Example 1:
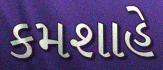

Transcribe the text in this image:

કમશાહે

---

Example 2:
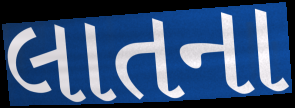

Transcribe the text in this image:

લાતના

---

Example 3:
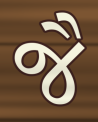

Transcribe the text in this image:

જૈ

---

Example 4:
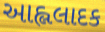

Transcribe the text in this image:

આહ્લલાદક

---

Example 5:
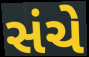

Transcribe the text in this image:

સંચે